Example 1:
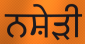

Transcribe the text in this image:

ਨਸ਼ੇੜੀ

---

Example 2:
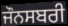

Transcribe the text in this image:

ਜੌਨਸਬਰੀ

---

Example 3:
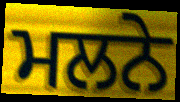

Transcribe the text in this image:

ਮਲਨੇ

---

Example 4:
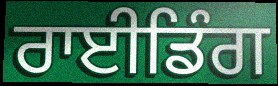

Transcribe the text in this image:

ਰਾਈਡਿੰਗ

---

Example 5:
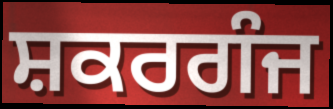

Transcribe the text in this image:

ਸ਼ਕਰਗੰਜ